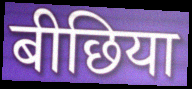
बीछिया